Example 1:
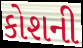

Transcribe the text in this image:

કોશની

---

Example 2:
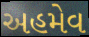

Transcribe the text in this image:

અહમેવ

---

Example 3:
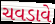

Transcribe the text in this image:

ચવડાવે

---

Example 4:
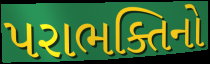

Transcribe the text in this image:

પરાભક્તિનો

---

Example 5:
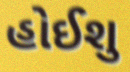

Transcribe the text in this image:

હોઈશુ